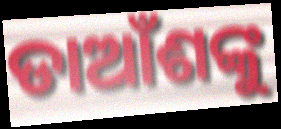
ଡାଆଁଶଙ୍କୁ